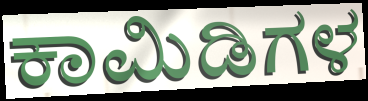
ಕಾಮಿಡಿಗಳ